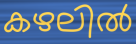
കഴലിൽ